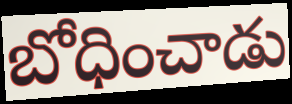
బోధించాడు